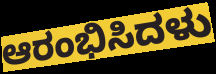
ಆರಂಭಿಸಿದಳು